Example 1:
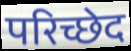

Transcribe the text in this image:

परिच्छेद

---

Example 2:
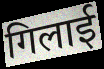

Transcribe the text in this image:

गिलाई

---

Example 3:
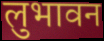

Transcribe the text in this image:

लुभावन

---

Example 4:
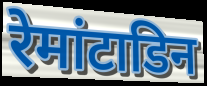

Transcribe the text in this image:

रेमांटाडिन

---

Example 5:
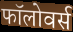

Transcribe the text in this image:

फॉलोवर्स